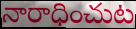
నారాధించుట